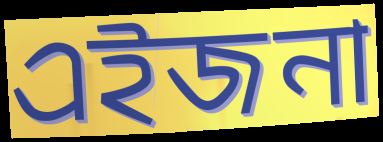
এইজনা